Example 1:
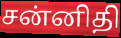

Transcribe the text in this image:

சன்னிதி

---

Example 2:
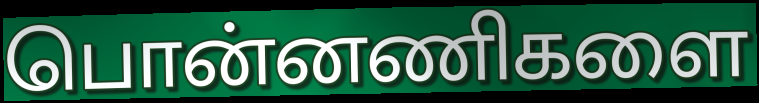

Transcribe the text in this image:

பொன்னணிகளை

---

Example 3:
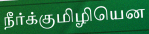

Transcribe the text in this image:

நீர்க்குமிழியென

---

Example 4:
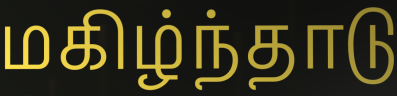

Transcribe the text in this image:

மகிழ்ந்தாடு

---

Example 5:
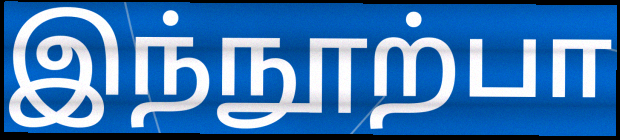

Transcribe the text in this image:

இந்நூற்பா